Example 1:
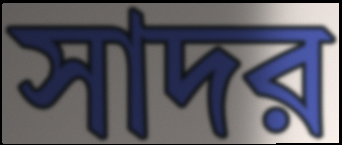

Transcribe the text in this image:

সাদর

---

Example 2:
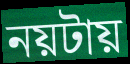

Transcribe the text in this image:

নয়টায়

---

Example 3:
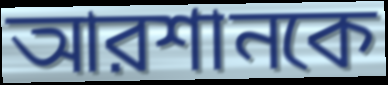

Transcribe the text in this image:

আরশানকে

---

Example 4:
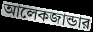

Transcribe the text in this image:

আলেকজান্ডার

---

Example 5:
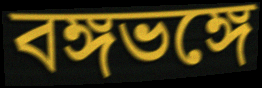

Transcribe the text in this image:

বঙ্গভঙ্গে